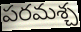
పరమశ్చ